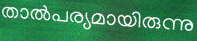
താൽപര്യമായിരുന്നു